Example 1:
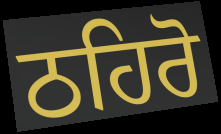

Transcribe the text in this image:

ਠਹਿਰੋ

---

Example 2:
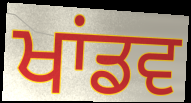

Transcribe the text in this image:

ਖਾਂਡਵ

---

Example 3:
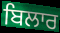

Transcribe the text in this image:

ਬਿਲਾਰ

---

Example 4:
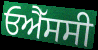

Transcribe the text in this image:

ਓਐੱਸਸੀ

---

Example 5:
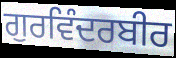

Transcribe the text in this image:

ਗੁਰਵਿੰਦਰਬੀਰ